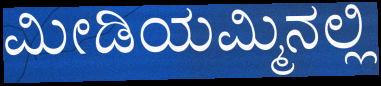
ಮೀಡಿಯಮ್ಮಿನಲ್ಲಿ